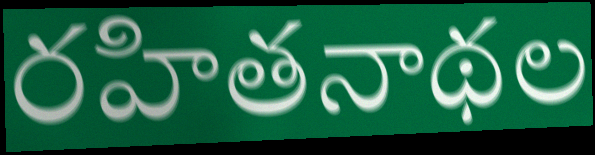
రహితనాథల